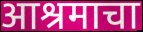
आश्रमाचा